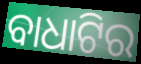
ବାଧାଟିର